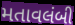
મતાવલંબી